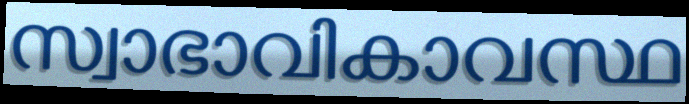
സ്വാഭാവികാവസ്ഥ